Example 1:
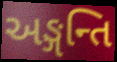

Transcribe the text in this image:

અઙ્ગન્તિ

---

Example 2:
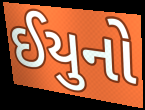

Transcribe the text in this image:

ઈયુનો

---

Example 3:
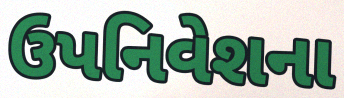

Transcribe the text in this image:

ઉપનિવેશના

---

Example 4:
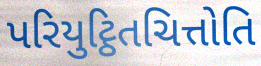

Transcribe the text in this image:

પરિયુટ્ઠિતચિત્તોતિ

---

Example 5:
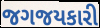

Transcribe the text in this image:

જગજયકારી